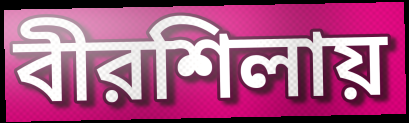
বীরশিলায়